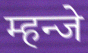
म्हन्जे